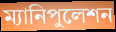
ম্যানিপুলেশন